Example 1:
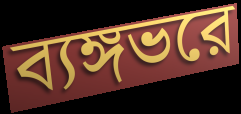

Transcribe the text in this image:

ব্যঙ্গভরে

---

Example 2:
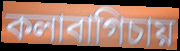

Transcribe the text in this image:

কলাবাগিচায়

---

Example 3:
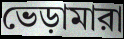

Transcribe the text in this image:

ভেড়ামারা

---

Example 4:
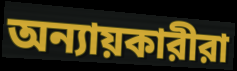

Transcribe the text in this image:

অন্যায়কারীরা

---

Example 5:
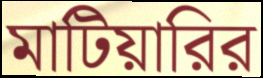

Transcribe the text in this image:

মাটিয়ারির